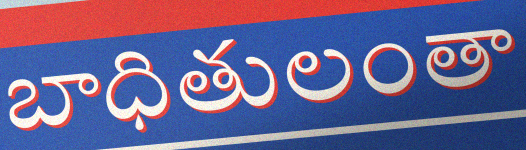
బాధితులంతా